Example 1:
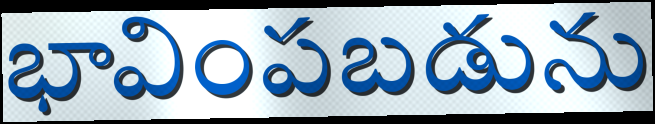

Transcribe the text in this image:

భావింపబడును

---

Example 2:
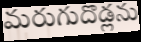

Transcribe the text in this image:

మరుగుదొడ్లను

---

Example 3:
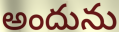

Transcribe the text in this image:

అందును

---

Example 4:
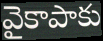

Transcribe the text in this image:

వైకాపాకు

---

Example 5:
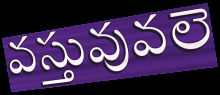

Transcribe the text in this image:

వస్తువువలె